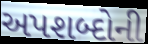
અપશબ્દોની